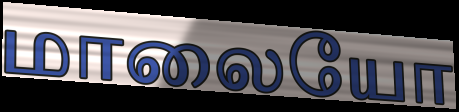
மாலையோ